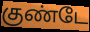
குண்டே